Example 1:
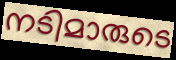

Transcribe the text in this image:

നടിമാരുടെ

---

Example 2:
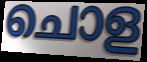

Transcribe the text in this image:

ചൊള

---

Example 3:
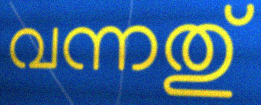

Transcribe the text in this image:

വന്നതു്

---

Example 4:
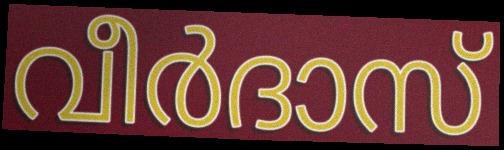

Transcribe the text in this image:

വീർദാസ്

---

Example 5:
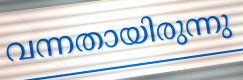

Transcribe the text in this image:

വന്നതായിരുന്നു